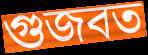
গুজবত